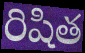
రిషిత